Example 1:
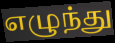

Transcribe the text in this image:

எழுந்து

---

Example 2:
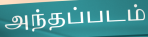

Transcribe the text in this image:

அந்தப்படம்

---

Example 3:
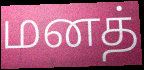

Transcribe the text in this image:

மனத்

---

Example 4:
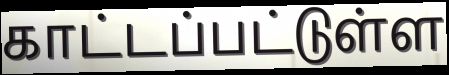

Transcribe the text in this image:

காட்டப்பட்டுள்ள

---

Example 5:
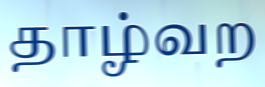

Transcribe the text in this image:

தாழ்வற